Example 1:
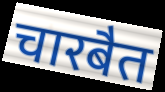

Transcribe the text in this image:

चारबैत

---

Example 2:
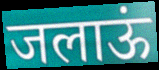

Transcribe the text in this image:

जलाऊं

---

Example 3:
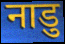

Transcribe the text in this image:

नाडु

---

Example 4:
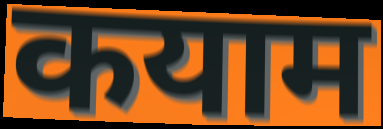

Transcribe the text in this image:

कयाम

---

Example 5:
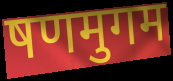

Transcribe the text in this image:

षणमुगम